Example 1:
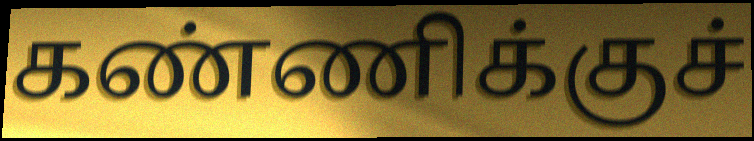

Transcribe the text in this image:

கண்ணிக்குச்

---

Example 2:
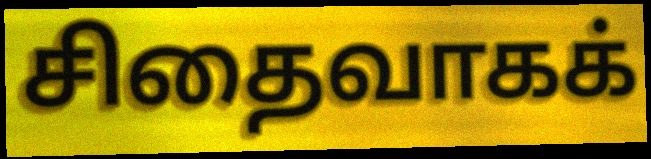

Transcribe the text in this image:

சிதைவாகக்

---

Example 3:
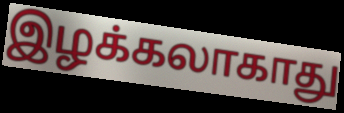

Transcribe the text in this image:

இழக்கலாகாது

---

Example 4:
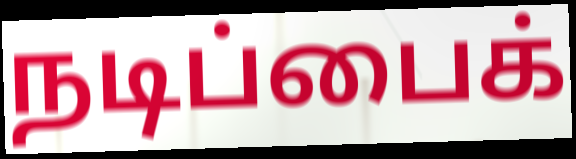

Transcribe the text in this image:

நடிப்பைக்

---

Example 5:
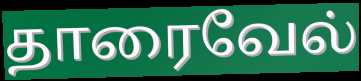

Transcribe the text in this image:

தாரைவேல்